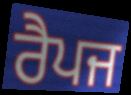
ਰੈਪਜ